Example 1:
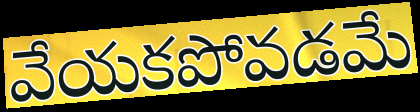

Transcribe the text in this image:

వేయకపోవడమే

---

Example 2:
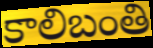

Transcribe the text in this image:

కాలిబంతి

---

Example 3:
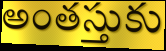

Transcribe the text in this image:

అంతస్తుకు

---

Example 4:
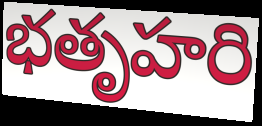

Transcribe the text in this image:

భతృహరి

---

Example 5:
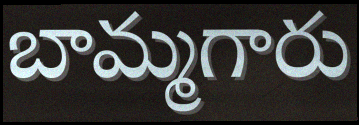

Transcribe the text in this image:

బామ్మగారు